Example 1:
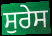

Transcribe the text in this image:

ਸੁਰੇਸ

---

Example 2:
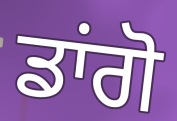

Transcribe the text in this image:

ਡਾਂਗੋ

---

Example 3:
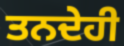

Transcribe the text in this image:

ਤਨਦੇਹੀ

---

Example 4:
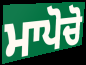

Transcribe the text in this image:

ਮਾਪੋਚੋ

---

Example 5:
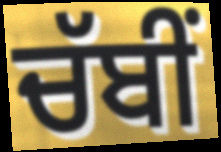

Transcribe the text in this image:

ਚੱਬੀਂ